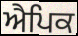
ਐਪਿਕ